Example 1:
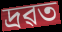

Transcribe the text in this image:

দ্ৰৱত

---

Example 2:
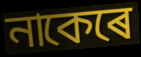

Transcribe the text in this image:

নাকেৰে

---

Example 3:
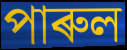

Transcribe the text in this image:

পাৰুল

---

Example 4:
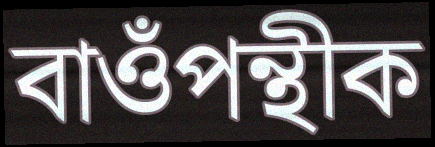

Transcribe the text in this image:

বাওঁপন্থীক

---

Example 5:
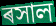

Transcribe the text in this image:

ৰসাল